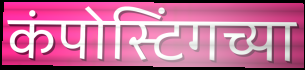
कंपोस्टिंगच्या